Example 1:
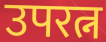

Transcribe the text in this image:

उपरत्न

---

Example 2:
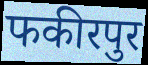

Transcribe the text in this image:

फकीरपुर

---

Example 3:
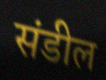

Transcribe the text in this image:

संडील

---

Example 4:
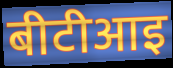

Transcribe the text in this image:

बीटीआइ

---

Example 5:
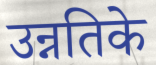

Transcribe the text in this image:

उन्नतिके